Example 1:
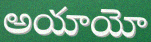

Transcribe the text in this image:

అయాయో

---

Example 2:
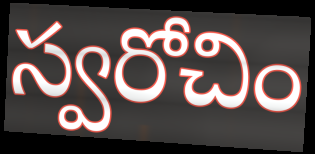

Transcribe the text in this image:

స్వరోచిం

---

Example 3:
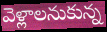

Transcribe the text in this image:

వెళ్లాలనుకున్న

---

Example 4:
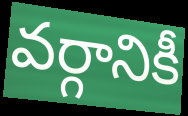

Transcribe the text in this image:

వర్గానికీ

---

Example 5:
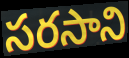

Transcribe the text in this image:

సరసాని